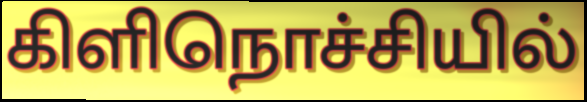
கிளிநொச்சியில்